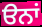
ੳਨਾਂ